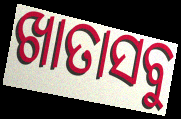
ଖାତାସବୁ